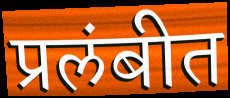
प्रलंबीत